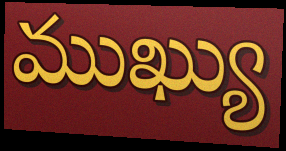
ముఖ్యు